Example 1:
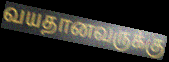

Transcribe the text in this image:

வயதானவருக்கு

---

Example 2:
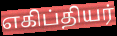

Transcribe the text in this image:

எகிப்தியர்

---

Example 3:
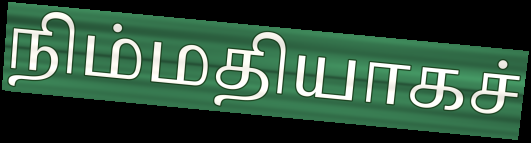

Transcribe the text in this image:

நிம்மதியாகச்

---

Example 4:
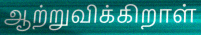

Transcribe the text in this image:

ஆற்றுவிக்கிறாள்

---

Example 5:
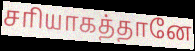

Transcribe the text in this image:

சரியாகத்தானே